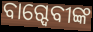
ବାଗ୍ଦେବୀଙ୍କ